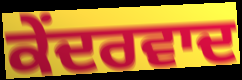
ਕੇਂਦਰਵਾਦ